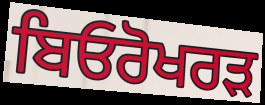
ਬਿਓਰੋਖਰੜ